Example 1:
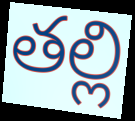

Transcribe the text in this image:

తల్లి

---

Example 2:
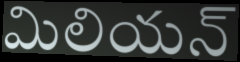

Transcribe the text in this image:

మిలియన్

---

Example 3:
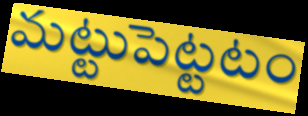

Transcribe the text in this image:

మట్టుపెట్టటం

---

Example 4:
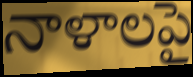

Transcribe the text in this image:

నాళాలపై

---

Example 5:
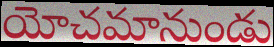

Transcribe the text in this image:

యోచమానుండు